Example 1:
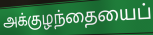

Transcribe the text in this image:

அக்குழந்தையைப்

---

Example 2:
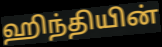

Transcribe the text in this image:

ஹிந்தியின்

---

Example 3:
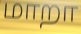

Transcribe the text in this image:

மாறா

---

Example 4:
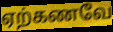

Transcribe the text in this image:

ஏற்கணவே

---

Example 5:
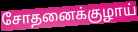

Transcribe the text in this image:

சோதனைக்குழாய்